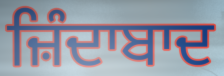
ਜ਼ਿੰਦਾਬਾਦ